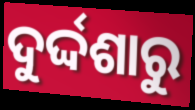
ଦୁର୍ଦ୍ଦଶାରୁ